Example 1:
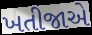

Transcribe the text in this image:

ખતીજાએ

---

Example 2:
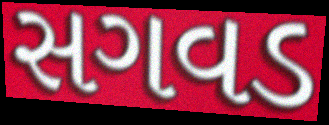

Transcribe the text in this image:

સગવડ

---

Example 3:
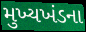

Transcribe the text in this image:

મુખ્યખંડના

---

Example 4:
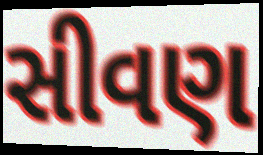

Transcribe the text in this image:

સીવણ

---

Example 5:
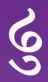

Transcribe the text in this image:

ઢુ